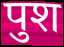
पुश